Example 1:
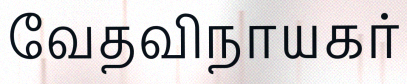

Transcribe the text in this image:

வேதவிநாயகர்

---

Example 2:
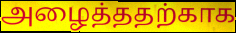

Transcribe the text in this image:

அழைத்ததற்காக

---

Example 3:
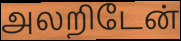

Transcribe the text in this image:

அலறிடேன்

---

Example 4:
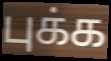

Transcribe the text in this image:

புக்க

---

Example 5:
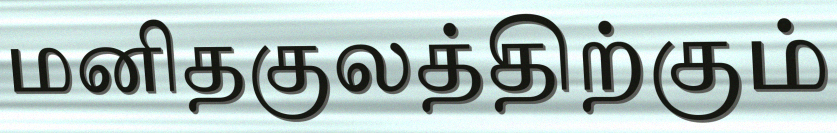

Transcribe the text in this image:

மனிதகுலத்திற்கும்